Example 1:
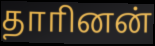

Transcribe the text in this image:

தாரினன்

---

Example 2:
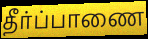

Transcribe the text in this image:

தீர்ப்பாணை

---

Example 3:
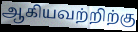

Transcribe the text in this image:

ஆகியவற்றிற்கு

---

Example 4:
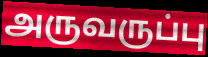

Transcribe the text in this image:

அருவருப்பு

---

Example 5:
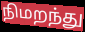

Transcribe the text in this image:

நிமறந்து